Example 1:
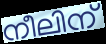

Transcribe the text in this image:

നീലിന്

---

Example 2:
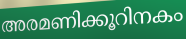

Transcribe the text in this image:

അരമണിക്കൂറിനകം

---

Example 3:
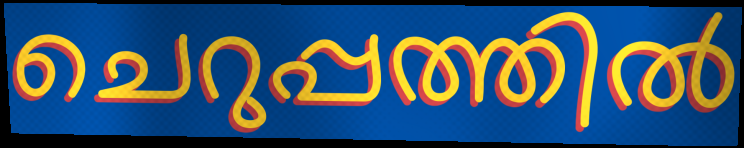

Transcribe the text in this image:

ചെറുപ്പത്തിൽ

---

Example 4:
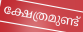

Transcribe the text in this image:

ക്ഷേത്രമുണ്ട്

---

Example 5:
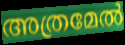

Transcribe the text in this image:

അത്രമേൽ